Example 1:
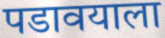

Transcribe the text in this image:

पडावयाला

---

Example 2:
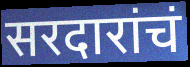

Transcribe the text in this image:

सरदारांचं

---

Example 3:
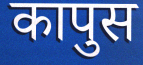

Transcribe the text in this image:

कापुस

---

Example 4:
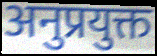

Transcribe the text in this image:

अनुप्रयुक्त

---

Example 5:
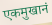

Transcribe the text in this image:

एकमुखानं